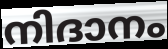
നിദാനം